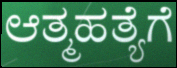
ಆತ್ಮಹತ್ಯೆಗೆ